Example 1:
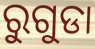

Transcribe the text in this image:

ରୁଗୁଡା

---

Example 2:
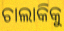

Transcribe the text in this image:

ଚାଲାକିକୁ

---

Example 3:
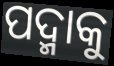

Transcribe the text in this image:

ପଦ୍ମାକୁ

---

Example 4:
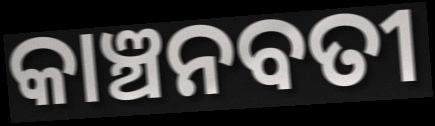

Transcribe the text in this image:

କାଞ୍ଚନବତୀ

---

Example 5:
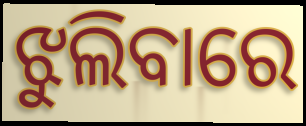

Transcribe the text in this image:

ଝୁଲିବାରେ